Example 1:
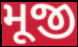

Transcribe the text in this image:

મૂજી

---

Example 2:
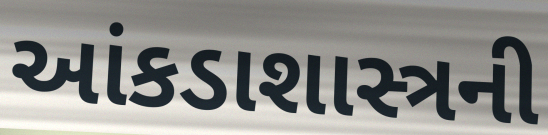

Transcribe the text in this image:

આંકડાશાસ્ત્રની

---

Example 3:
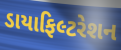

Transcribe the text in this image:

ડાયાફિલ્ટરેશન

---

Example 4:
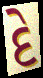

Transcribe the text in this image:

દે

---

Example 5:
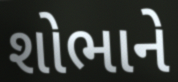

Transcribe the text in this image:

શોભાને